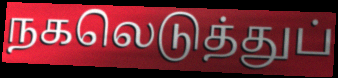
நகலெடுத்துப்